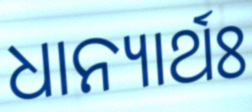
ଧାନ୍ୟାର୍ଥଃ